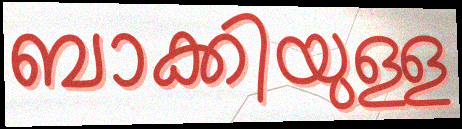
ബാക്കിയുള്ള